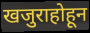
खजुराहोहून